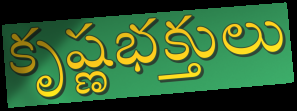
కృష్ణభక్తులు